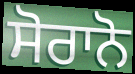
ਸੋਰਾਨੋ